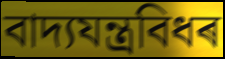
বাদ্যযন্ত্ৰবিধৰ